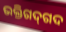
ଭକ୍ତିଗଦ୍‌ଗଦ